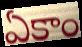
ఏకాం